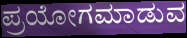
ಪ್ರಯೋಗಮಾಡುವ